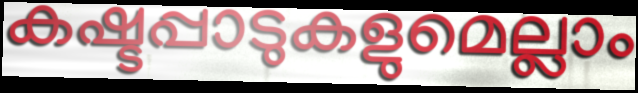
കഷ്ടപ്പാടുകളുമെല്ലാം